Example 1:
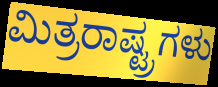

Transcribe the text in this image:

ಮಿತ್ರರಾಷ್ಟ್ರಗಳು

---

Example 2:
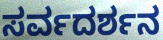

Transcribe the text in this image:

ಸರ್ವದರ್ಶನ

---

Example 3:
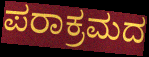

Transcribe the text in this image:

ಪರಾಕ್ರಮದ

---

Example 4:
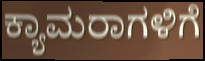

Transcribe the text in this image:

ಕ್ಯಾಮರಾಗಳಿಗೆ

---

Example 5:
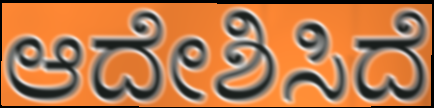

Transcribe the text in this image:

ಆದೇಶಿಸಿದೆ